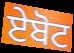
ਏਬੋਟ